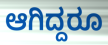
ಆಗಿದ್ದರೂ